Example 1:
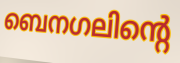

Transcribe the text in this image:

ബെനഗലിന്റെ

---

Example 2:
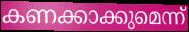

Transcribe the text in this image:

കണക്കാക്കുമെന്ന്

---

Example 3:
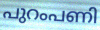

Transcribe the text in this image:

പുറംപണി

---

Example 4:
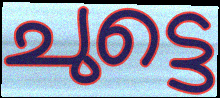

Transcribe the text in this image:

ചുട്ടെ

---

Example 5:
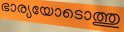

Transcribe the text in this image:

ഭാര്യയോടൊത്തു